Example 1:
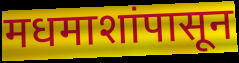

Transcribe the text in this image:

मधमाशांपासून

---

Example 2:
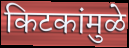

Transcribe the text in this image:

किटकांमुळे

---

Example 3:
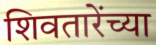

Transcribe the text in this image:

शिवतारेंच्या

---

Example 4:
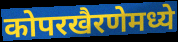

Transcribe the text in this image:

कोपरखैरणेमध्ये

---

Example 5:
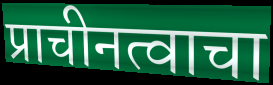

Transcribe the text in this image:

प्राचीनत्वाचा